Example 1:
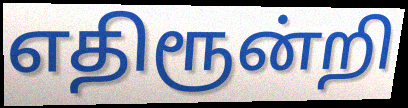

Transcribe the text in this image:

எதிரூன்றி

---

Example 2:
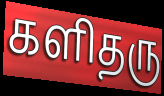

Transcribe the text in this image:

களிதரு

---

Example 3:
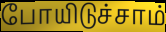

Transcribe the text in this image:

போயிடுச்சாம்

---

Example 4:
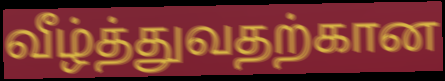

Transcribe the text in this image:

வீழ்த்துவதற்கான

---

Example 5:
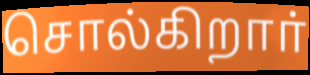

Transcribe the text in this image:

சொல்கிறார்